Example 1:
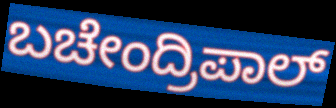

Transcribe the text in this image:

ಬಚೇಂದ್ರಿಪಾಲ್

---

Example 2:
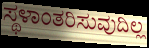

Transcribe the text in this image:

ಸ್ಥಳಾಂತರಿಸುವುದಿಲ್ಲ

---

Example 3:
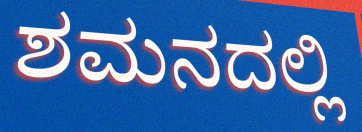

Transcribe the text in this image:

ಶಮನದಲ್ಲಿ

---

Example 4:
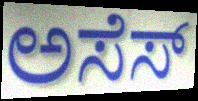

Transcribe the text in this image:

ಅಸೆಸ್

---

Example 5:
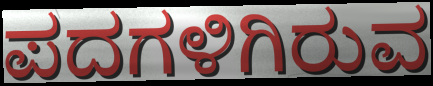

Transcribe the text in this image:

ಪದಗಳಿಗಿರುವ